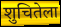
शुचितेला